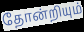
தோன்றியும்